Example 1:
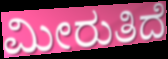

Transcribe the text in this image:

ಮೀರುತಿದೆ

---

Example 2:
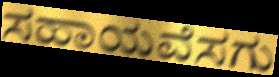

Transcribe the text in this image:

ಸಹಾಯವೆಸಗು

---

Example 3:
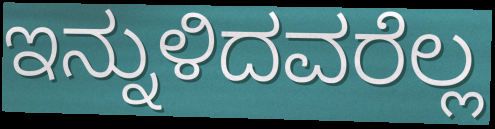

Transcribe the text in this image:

ಇನ್ನುಳಿದವರೆಲ್ಲ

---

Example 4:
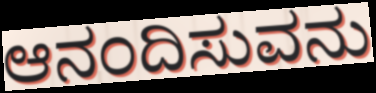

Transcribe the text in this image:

ಆನಂದಿಸುವನು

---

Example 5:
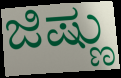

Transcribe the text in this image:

ಜಿಷ್ಣು